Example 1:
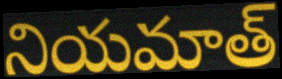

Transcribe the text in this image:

నియమాత్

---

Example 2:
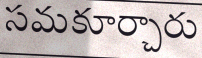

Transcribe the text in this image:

సమకూర్చారు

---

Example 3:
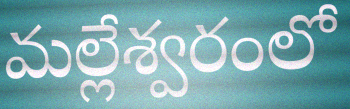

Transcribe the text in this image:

మల్లేశ్వరంలో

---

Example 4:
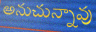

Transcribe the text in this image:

అనుచున్నావు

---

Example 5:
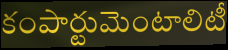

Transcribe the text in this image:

కంపార్టుమెంటాలిటీ